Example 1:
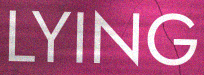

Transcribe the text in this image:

LYING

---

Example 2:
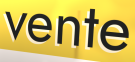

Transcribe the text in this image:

vente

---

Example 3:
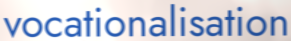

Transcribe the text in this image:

vocationalisation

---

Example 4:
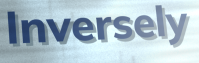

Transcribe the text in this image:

Inversely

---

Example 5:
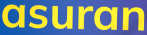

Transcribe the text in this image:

asuran